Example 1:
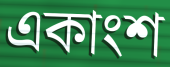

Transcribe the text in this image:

একাংশ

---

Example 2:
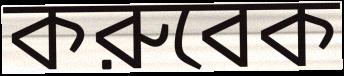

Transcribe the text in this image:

করুবেক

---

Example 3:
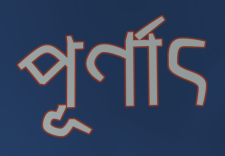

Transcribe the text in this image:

পূর্ণাৎ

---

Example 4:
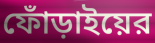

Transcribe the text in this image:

ফোঁড়াইয়ের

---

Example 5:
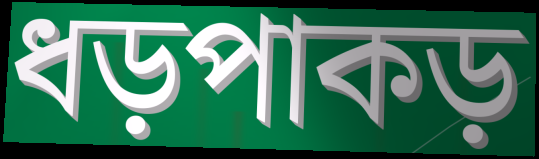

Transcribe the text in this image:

ধড়পাকড়